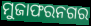
ମୁଜାଫରନଗର